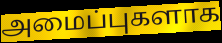
அமைப்புகளாக